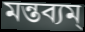
মন্তব্যম্